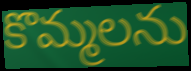
కొమ్మలను